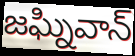
జఘ్నివాన్